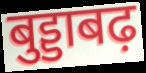
बुड्डाबढ़